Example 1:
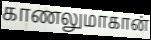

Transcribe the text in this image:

காணலுமாகான்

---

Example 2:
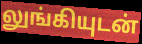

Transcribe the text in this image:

லுங்கியுடன்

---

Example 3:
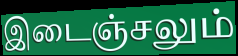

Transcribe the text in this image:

இடைஞ்சலும்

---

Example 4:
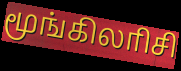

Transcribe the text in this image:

மூங்கிலரிசி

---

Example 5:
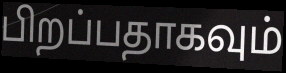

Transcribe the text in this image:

பிறப்பதாகவும்